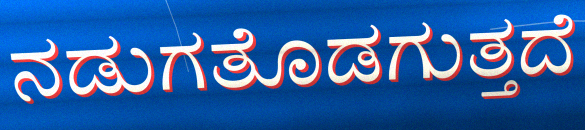
ನಡುಗತೊಡಗುತ್ತದೆ